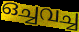
ഒച്ചവച്ച